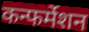
कन्फर्मेशन